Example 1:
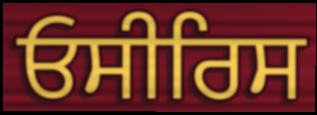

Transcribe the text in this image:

ਓਸੀਰਿਸ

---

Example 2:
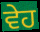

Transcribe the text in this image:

ਵੇਹ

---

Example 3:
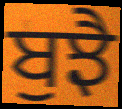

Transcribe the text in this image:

ਬੁਝੈ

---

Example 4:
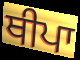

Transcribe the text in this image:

ਥੀਪਾ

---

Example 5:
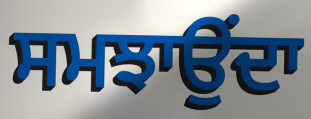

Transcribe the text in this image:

ਸਮਝਾਉਂਦਾ